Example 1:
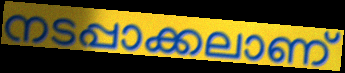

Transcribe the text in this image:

നടപ്പാക്കലാണ്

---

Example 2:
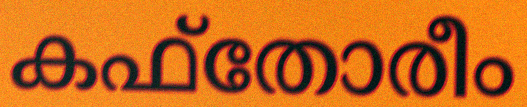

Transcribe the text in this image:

കഫ്തോരീം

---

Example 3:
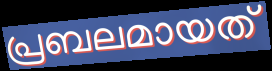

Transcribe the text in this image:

പ്രബലമായത്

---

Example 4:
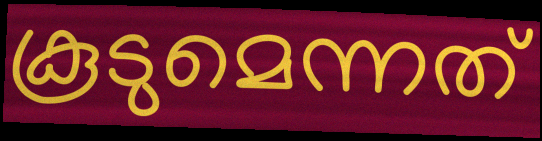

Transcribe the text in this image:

കൂടുമെന്നത്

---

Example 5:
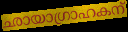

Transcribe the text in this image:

ഛായാഗ്രാഹകന്